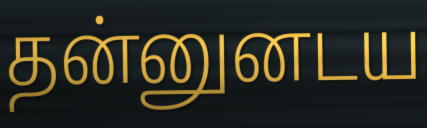
தன்னுனடய